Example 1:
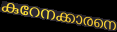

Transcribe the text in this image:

കുറേനക്കാരനെ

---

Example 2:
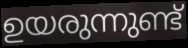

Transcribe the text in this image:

ഉയരുന്നുണ്ട്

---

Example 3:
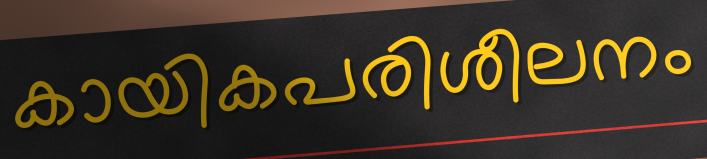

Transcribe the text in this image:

കായികപരിശീലനം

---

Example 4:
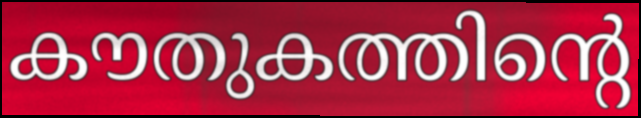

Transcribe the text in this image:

കൗതുകത്തിന്റെ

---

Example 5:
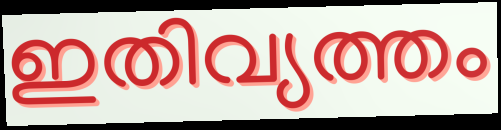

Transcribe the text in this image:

ഇതിവ്യത്തം